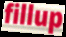
fillup